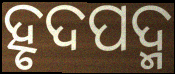
ହୃଦପଦ୍ମ